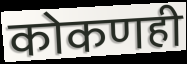
कोकणही